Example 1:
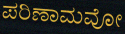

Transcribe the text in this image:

ಪರಿಣಾಮವೋ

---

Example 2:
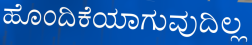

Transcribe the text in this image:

ಹೊಂದಿಕೆಯಾಗುವುದಿಲ್ಲ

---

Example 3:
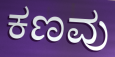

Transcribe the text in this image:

ಕಣವು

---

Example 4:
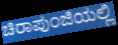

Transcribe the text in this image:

ಚಿರಾಪುಂಜಿಯಲ್ಲಿ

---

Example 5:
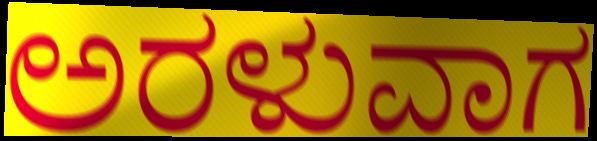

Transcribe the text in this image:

ಅರಳುವಾಗ